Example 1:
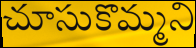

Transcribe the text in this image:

చూసుకొమ్మని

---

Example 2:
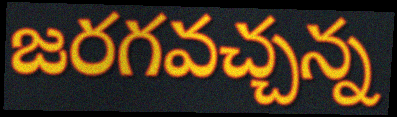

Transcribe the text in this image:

జరగవచ్చన్న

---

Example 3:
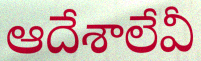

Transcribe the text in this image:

ఆదేశాలేవీ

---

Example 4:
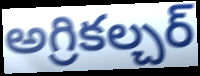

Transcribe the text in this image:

అగ్రికల్చర్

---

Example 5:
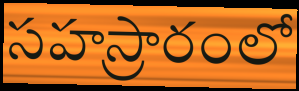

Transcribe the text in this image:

సహస్రారంలో